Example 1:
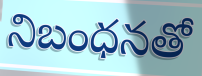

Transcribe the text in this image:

నిబంధనతో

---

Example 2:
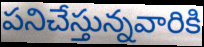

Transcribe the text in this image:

పనిచేస్తున్నవారికి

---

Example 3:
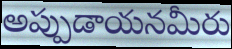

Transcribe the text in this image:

అప్పుడాయనమీరు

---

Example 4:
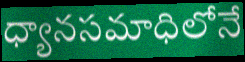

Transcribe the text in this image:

ధ్యానసమాధిలోనే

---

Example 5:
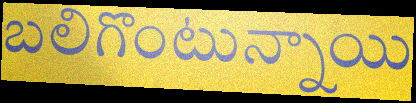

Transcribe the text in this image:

బలిగొంటున్నాయి